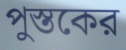
পুস্তকের